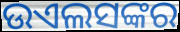
ଉଏଲସଙ୍କର